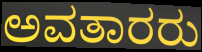
ಅವತಾರರು